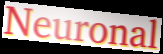
Neuronal